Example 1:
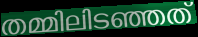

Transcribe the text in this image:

തമ്മിലിടഞ്ഞത്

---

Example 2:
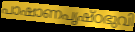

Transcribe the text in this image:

പാഷാണപൃഷ്ഠഭുവി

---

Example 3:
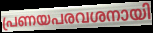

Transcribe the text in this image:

പ്രണയപരവശനായി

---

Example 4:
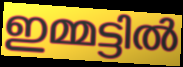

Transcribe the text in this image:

ഇമ്മട്ടിൽ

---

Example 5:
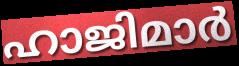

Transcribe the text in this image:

ഹാജിമാർ